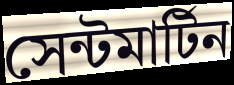
সেন্টমার্টিন